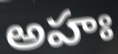
అహః